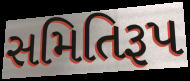
સમિતિરૂપ